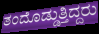
ತಂದೊಡ್ಡುತ್ತಿದ್ದರು